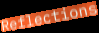
Reflections